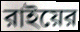
রাইয়ের